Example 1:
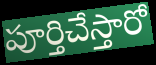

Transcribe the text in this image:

పూర్తిచేస్తారో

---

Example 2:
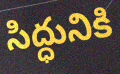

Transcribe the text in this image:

సిద్ధునికి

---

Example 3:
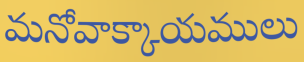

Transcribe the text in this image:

మనోవాక్కాయములు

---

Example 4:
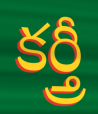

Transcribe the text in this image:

కర్త్రీ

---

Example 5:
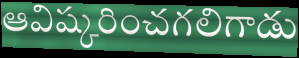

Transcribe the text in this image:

ఆవిష్కరించగలిగాడు